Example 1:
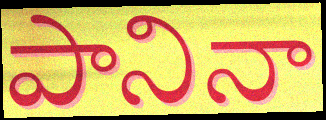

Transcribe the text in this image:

పానినా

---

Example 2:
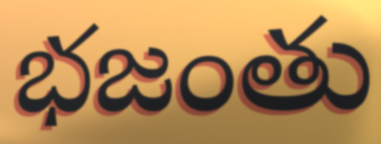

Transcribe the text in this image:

భజంతు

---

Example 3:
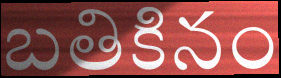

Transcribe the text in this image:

బతికినం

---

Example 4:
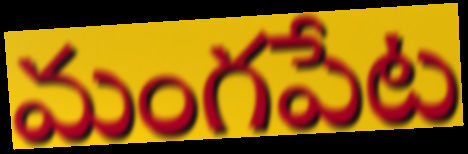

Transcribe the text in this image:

మంగపేట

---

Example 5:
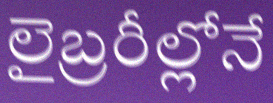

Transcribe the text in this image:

లైబ్రరీల్లోనే